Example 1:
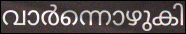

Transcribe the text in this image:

വാർന്നൊഴുകി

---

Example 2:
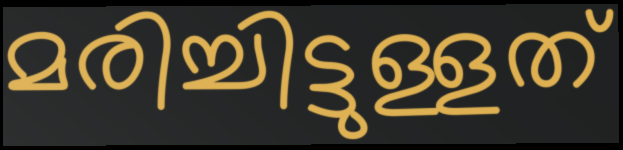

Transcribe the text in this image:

മരിച്ചിട്ടുള്ളത്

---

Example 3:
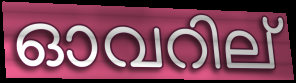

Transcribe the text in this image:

ഓവറില്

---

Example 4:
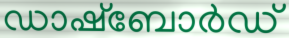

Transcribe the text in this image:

ഡാഷ്ബോർഡ്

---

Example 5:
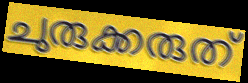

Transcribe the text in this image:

ചുരുക്കരുത്